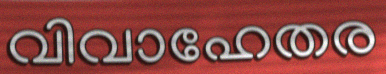
വിവാഹേതര